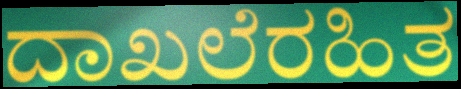
ದಾಖಲೆರಹಿತ